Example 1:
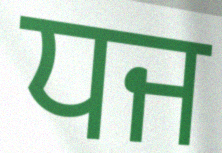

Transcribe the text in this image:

ਧਜ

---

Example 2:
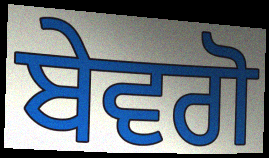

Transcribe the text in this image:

ਬੇਵਗੋ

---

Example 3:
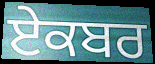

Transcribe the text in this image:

ਏਕਬਰ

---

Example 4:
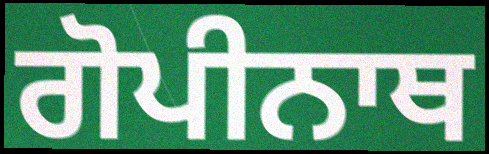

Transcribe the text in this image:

ਗੋਪੀਨਾਥ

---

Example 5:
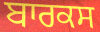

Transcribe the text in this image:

ਬਾਰਕਸ